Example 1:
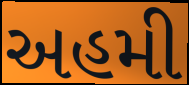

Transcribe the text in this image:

અહમી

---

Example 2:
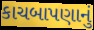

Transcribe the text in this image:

કાચબાપણાનું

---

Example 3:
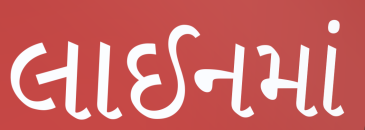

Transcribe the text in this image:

લાઈનમાં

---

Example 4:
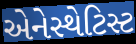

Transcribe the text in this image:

એનેસ્થેટિસ્ટ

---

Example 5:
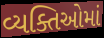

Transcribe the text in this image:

વ્યક્તિઓમાં